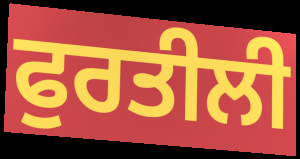
ਫੁਰਤੀਲੀ